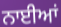
ਨਾਈਆਂ